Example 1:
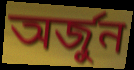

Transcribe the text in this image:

অর্জুন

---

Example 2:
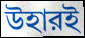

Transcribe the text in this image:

উহারই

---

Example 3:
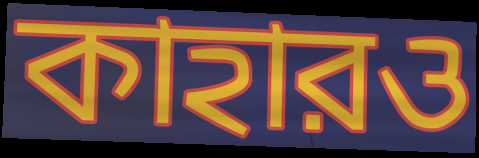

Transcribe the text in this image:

কাহারও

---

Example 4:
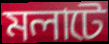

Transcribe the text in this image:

মলাটে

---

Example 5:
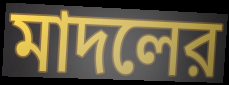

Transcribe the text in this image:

মাদলের